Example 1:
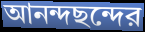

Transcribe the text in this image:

আনন্দছন্দের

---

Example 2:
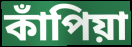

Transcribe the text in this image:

কাঁপিয়া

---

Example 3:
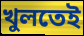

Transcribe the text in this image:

খুলতেই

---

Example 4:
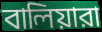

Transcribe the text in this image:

বালিয়ারা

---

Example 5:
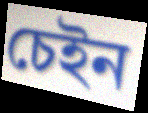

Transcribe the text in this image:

চেইন